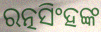
ରତ୍ନସିଂହଙ୍କ